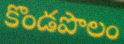
కొండపొలం